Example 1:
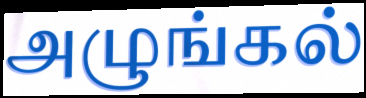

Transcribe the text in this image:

அழுங்கல்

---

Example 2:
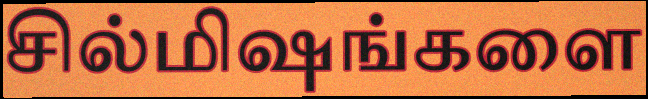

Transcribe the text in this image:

சில்மிஷங்களை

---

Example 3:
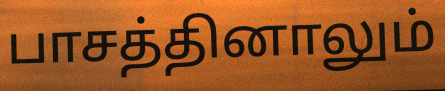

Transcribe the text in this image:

பாசத்தினாலும்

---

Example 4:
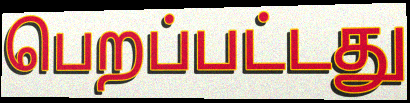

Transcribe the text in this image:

பெறப்பட்டது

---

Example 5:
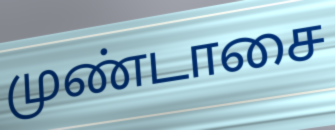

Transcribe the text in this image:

முண்டாசை